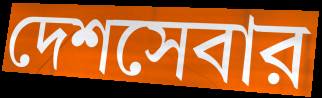
দেশসেবার